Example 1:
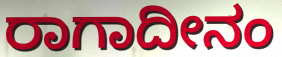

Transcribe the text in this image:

ರಾಗಾದೀನಂ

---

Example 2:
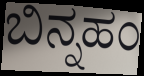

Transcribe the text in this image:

ಬಿನ್ನಹಂ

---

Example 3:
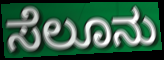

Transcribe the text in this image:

ಸೆಲೂನು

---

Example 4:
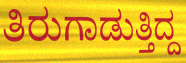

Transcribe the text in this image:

ತಿರುಗಾಡುತ್ತಿದ್ದ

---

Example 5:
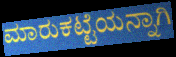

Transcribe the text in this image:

ಮಾರುಕಟ್ಟೆಯನ್ನಾಗಿ